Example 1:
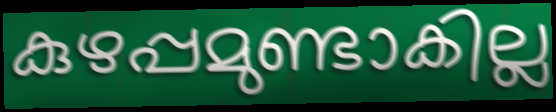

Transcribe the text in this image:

കുഴപ്പമുണ്ടാകില്ല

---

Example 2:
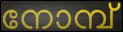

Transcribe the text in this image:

നോമ്പ്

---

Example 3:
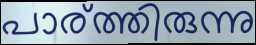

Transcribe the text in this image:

പാര്ത്തിരുന്നു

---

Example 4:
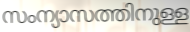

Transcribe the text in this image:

സംന്യാസത്തിനുള്ള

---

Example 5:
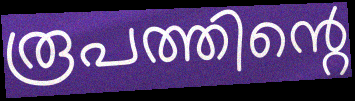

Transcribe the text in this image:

രൂപത്തിന്റെ